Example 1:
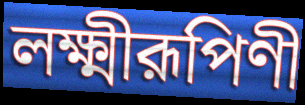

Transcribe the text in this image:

লক্ষ্মীরূপিণী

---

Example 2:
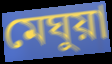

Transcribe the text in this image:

মেঘুয়া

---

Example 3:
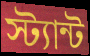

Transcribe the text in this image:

স্ট্যান্ট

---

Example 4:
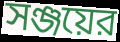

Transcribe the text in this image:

সঞ্জয়ের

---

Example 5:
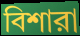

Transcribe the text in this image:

বিশারা